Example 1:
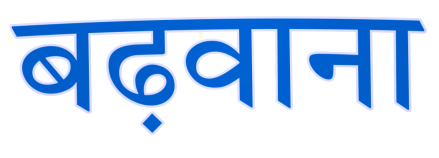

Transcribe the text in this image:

बढ़वाना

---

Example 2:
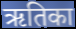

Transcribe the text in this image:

ऋतिका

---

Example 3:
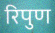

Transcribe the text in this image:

रिपुण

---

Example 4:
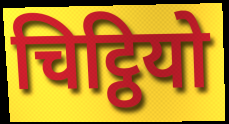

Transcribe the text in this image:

चिट्ठियो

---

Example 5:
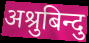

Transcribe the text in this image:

अश्रुबिन्दु